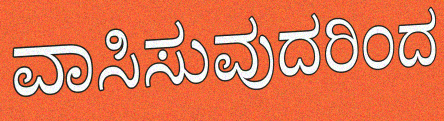
ವಾಸಿಸುವುದರಿಂದ